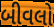
બીવલો